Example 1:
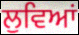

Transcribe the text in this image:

ਲੁਵਿਆਂ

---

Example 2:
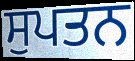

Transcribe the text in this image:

ਸੁਪਤਨ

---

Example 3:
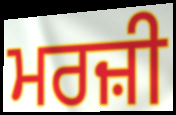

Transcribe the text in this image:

ਮਰਜ਼ੀ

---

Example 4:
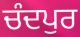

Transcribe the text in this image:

ਚੰਦਪੁਰ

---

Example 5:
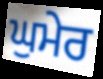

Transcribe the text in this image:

ਘੁਮੇਰ